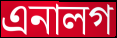
এনালগ